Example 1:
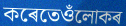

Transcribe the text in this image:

কৰেতেওঁলোকৰ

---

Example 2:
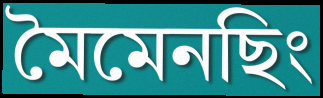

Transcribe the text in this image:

মৈমেনছিং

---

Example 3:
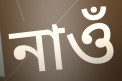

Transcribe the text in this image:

নাওঁ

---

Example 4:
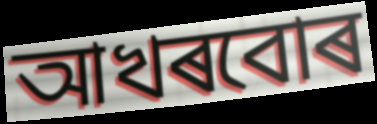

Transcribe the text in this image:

আখৰবোৰ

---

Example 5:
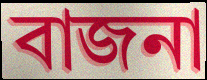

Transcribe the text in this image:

বাজনা